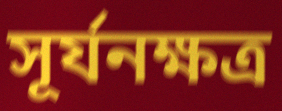
সূর্যনক্ষত্র